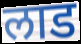
लाड